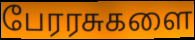
பேரரசுகளை